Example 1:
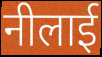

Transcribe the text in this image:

नीलाई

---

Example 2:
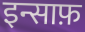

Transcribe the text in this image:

इन्साफ़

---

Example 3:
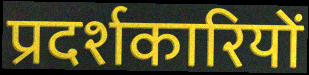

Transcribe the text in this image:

प्रदर्शकारियों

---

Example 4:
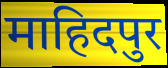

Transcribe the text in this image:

माहिदपुर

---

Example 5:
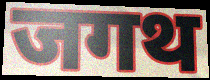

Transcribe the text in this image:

जगथ